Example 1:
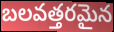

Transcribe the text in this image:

బలవత్తరమైన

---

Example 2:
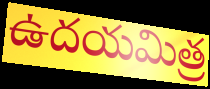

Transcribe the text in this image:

ఉదయమిత్ర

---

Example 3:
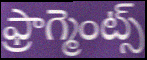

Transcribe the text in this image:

ఫ్రాగ్మెంట్స్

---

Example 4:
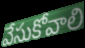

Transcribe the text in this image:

వేసుకోవాలి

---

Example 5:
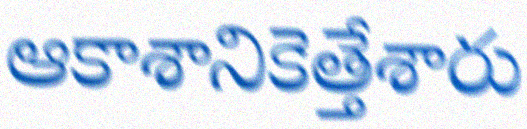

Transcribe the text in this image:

ఆకాశానికెత్తేశారు